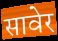
सावेर